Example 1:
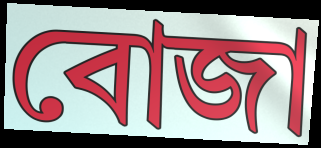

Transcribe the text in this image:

বোজা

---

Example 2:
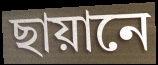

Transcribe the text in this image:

ছায়ানে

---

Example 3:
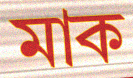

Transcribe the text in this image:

মাক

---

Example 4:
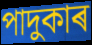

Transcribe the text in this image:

পাদুকাৰ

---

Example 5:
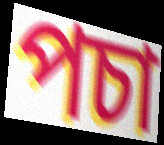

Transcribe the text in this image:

পচা